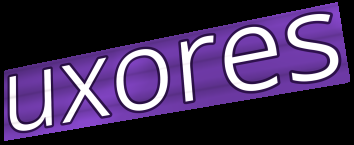
uxores